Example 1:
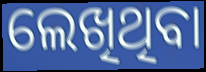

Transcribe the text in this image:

ଲେଖିଥିବା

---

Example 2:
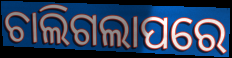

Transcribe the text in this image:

ଚାଲିଗଲାପରେ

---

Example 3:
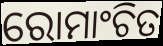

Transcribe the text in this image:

ରୋମାଂଚିତ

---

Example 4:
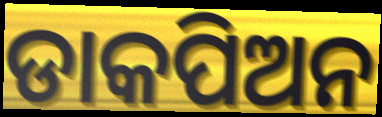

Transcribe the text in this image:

ଡାକପିଅନ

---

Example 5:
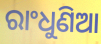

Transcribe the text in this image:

ରାଂଧୁଣିଆ